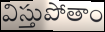
విస్తుపోతాం